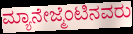
ಮ್ಯಾನೇಜ್ಮೆಂಟಿನವರು